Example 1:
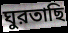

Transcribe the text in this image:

ঘুরতাছি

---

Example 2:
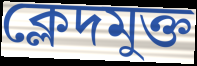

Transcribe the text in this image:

ক্লেদমুক্ত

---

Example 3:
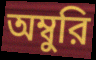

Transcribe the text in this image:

অম্বুরি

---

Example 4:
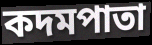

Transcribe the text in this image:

কদমপাতা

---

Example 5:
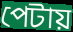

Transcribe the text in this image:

পেটায়